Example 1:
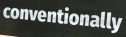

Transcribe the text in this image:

conventionally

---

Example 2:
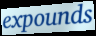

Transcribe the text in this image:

expounds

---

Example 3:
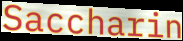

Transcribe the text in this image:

Saccharin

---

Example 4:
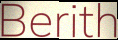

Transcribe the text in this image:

Berith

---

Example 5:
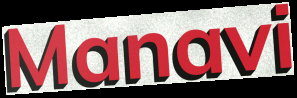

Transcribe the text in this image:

Manavi